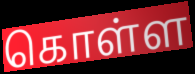
கொள்ள